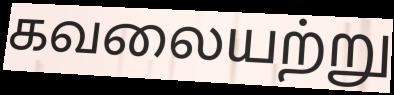
கவலையற்று